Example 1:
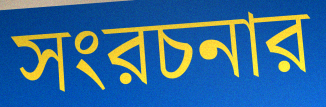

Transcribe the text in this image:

সংরচনার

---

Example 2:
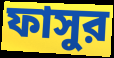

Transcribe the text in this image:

ফাসুর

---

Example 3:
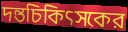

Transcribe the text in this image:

দন্তচিকিৎসকের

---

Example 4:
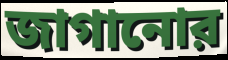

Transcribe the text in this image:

জাগানোর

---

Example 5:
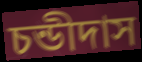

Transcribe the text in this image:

চন্ডীদাস